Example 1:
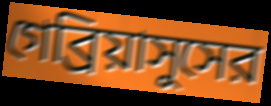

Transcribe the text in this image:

গেব্রিয়াসুসের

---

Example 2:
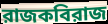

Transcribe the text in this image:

রাজকবিরাজ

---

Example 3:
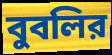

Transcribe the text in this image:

বুবলির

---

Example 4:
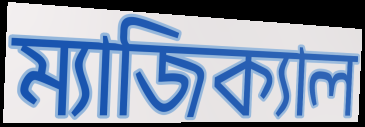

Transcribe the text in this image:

ম্যাজিক্যাল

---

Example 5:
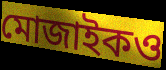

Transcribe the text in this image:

মোজাইকও